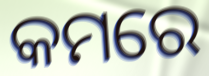
କମରେ